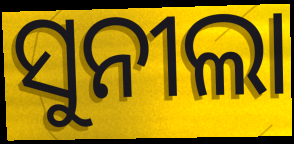
ସୁନୀଲା